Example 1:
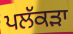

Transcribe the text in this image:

ਪਲੱਕੜਾ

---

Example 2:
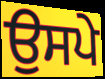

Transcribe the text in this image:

ਉਸਪੇ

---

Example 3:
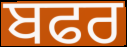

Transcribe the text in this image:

ਬਫਰ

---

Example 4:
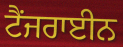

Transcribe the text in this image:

ਟੈਂਜਰਾਈਨ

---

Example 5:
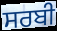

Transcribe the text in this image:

ਸਰਬੀ